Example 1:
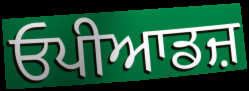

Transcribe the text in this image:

ਓਪੀਆਡਜ਼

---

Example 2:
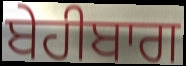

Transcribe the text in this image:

ਬੇਹੀਬਾਗ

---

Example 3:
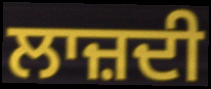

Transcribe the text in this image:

ਲਾਜ਼ਦੀ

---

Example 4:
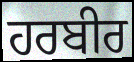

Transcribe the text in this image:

ਹਰਬੀਰ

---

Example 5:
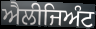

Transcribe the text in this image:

ਐਲੀਜਿਅੰਟ